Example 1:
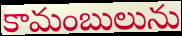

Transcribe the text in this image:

కామంబులును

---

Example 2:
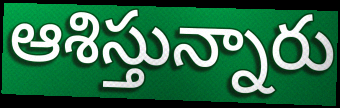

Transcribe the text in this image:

ఆశిస్తున్నారు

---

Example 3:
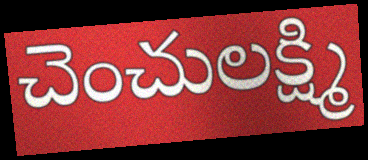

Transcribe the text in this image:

చెంచులక్ష్మి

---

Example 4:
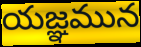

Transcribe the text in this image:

యజ్ఞమున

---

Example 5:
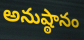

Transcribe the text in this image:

అనుష్ఠానం